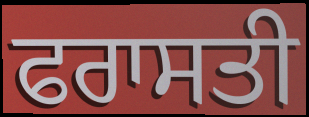
ਫਰਾਸਤੀ